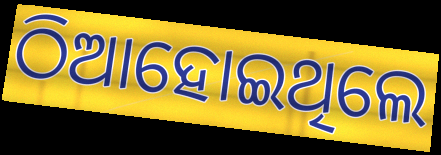
ଠିଆହୋଇଥିଲେ